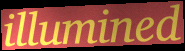
illumined